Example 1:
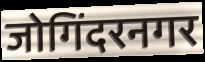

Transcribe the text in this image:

जोगिंदरनगर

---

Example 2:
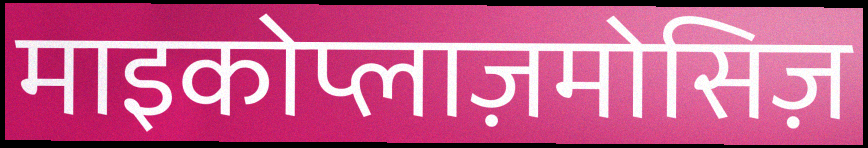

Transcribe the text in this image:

माइकोप्लाज़मोसिज़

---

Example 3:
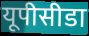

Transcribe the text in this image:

यूपीसीडा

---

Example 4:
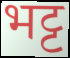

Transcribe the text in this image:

भट्ट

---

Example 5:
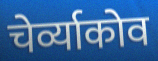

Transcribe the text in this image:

चेर्व्याकोव